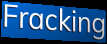
Fracking